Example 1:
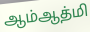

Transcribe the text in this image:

ஆம்ஆத்மி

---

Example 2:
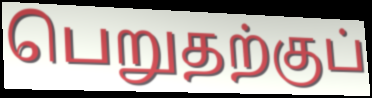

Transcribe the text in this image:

பெறுதற்குப்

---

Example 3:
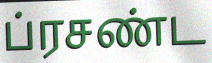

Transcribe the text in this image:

ப்ரசண்ட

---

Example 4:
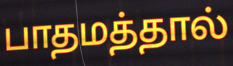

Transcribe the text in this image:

பாதமத்தால்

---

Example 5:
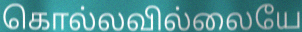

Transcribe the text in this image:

கொல்லவில்லையே